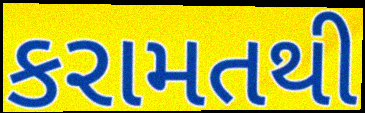
કરામતથી